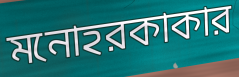
মনোহরকাকার